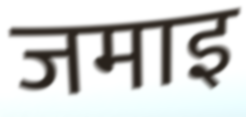
जमाइ